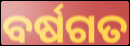
ବର୍ଷଗତ